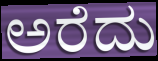
ಅರೆದು